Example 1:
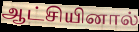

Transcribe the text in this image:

ஆட்சியினால்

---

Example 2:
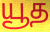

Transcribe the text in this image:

யூத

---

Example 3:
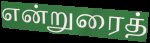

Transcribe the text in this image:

என்றுரைத்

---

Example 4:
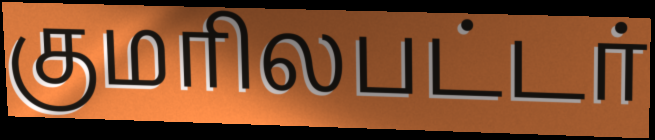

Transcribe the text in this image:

குமரிலபட்டர்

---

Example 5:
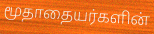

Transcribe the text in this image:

மூதாதையர்களின்